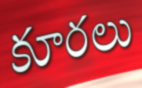
కూరలు